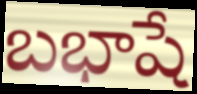
బభాషే